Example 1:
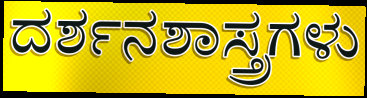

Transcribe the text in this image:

ದರ್ಶನಶಾಸ್ತ್ರಗಳು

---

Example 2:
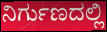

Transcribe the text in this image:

ನಿರ್ಗುಣದಲ್ಲಿ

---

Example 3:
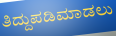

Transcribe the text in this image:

ತಿದ್ದುಪಡಿಮಾಡಲು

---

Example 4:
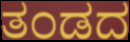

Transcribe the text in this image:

ತಂಡದ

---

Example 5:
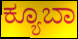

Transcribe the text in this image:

ಕ್ಯೂಬಾ